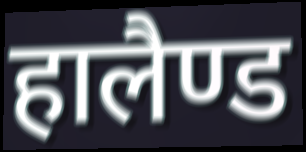
हालैण्ड